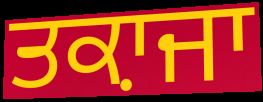
ਤਕ਼ਾਜਾ